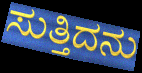
ಸುತ್ತಿದನು